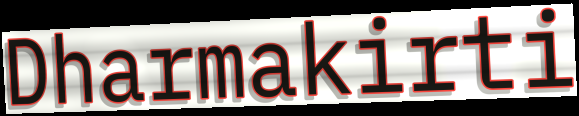
Dharmakirti